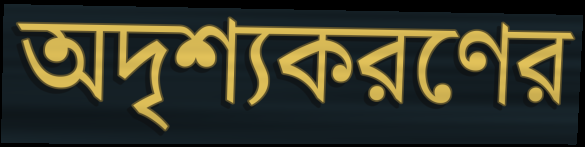
অদৃশ্যকরণের